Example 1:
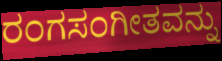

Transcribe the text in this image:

ರಂಗಸಂಗೀತವನ್ನು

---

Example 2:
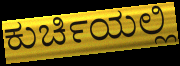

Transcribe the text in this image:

ಕುರ್ಚಿಯಲ್ಲಿ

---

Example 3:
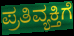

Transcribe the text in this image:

ಪ್ರತಿವ್ಯಕ್ತಿಗೆ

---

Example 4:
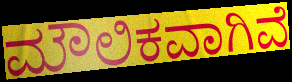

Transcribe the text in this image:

ಮೌಲಿಕವಾಗಿವೆ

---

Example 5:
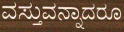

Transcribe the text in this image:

ವಸ್ತುವನ್ನಾದರೂ